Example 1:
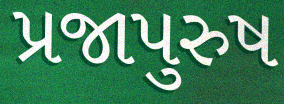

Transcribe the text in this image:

પ્રજાપુરુષ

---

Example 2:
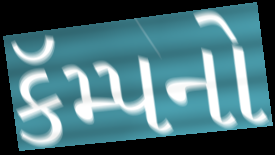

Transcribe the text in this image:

કૅમ્પનો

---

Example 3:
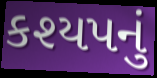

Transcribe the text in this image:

કશ્યપનું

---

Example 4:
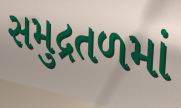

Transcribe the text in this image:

સમુદ્રતળમાં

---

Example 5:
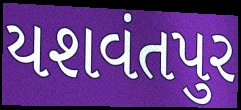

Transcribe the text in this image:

યશવંતપુર